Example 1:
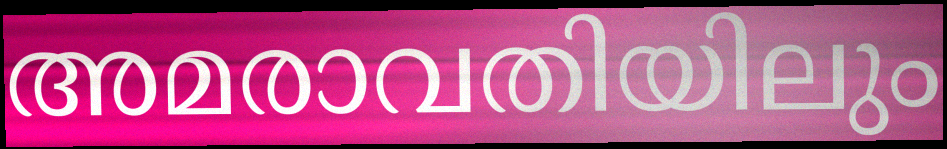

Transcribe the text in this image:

അമരാവതിയിലും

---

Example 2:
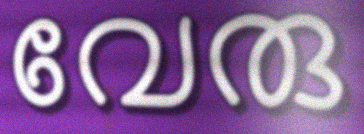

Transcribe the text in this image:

വേരു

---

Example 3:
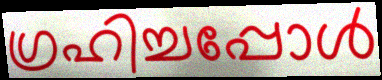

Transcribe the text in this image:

ഗ്രഹിച്ചപ്പോൾ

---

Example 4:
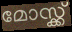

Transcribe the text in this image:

മോസ്ക്ക്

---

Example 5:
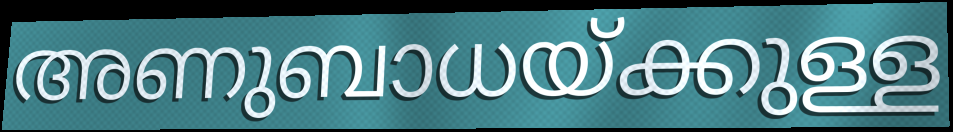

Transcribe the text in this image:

അണുബാധയ്ക്കുള്ള